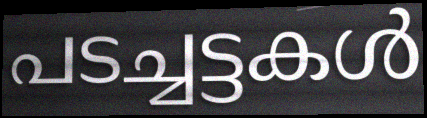
പടച്ചട്ടകൾ